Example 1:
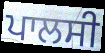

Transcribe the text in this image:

ਪਾਲਸੀ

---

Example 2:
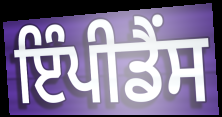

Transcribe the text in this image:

ਇੰਪੀਡੈਂਸ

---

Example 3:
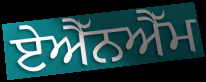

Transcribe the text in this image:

ਏਐੱਨਐੱਮ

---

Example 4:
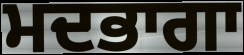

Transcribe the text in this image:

ਮਦਭਾਗਾ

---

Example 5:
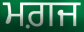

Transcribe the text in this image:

ਮਗ਼ਜ